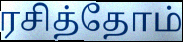
ரசித்தோம்